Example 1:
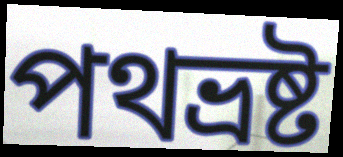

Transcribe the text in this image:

পথভ্ৰষ্ট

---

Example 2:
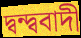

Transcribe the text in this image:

দ্বন্দ্ববাদী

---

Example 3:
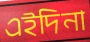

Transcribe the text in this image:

এইদিনা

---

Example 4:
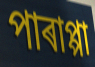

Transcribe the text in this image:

পাৰাপ্পা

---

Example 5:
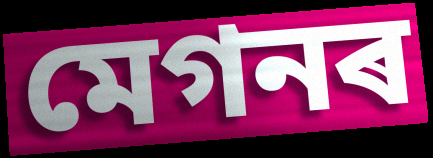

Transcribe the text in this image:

মেগনৰ